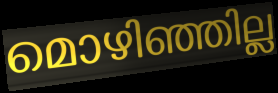
മൊഴിഞ്ഞില്ല